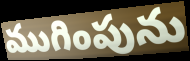
ముగింపును